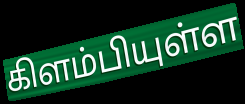
கிளம்பியுள்ள